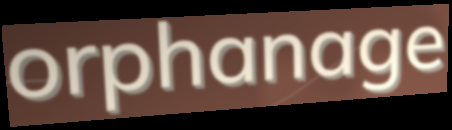
orphanage